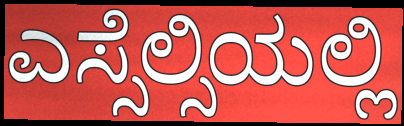
ಎಸ್ಸೆಲ್ಸಿಯಲ್ಲಿ